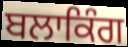
ਬਲਾਕਿੰਗ